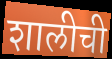
शालीची